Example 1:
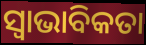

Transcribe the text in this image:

ସ୍ବାଭାବିକତା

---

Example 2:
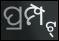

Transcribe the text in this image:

ପ୍ରମ୍ପ୍ଟ୍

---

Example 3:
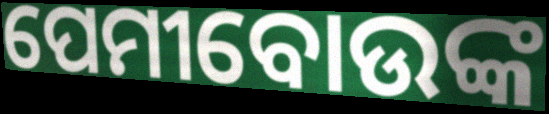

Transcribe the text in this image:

ପେମୀବୋଉଙ୍କ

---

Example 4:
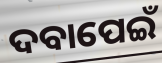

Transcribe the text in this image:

ଦବାପେଇଁ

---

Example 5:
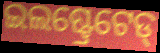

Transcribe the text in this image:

ଇଲଷ୍ଟ୍ରେଟେଡ୍